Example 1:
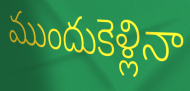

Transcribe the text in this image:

ముందుకెళ్లినా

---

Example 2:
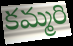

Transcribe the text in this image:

కమ్మరి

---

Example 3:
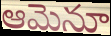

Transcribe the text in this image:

ఆమెనూ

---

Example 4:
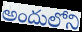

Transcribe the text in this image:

అందులోని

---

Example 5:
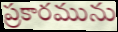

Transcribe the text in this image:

ప్రకారమును